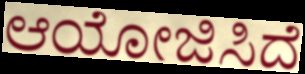
ಆಯೋಜಿಸಿದೆ